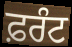
ਫ਼ਰੰਟ